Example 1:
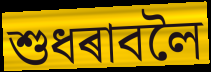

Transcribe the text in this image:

শুধৰাবলৈ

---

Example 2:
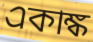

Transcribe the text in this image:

একাঙ্ক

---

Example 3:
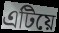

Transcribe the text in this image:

এটিয়ে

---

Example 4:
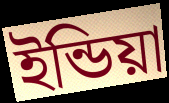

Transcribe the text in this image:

ইন্ডিয়া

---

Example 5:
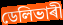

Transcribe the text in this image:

ডেলিভাৰী